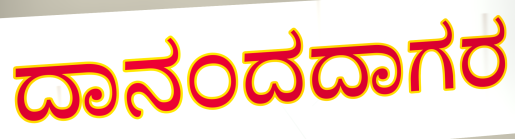
ದಾನಂದದಾಗರ